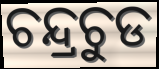
ଚନ୍ଦ୍ରଚୁଡ